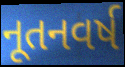
નૂતનવર્ષ